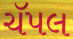
ચૅપલ